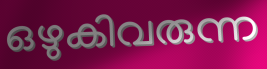
ഒഴുകിവരുന്ന